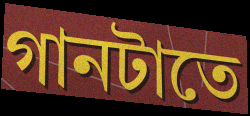
গানটাতে